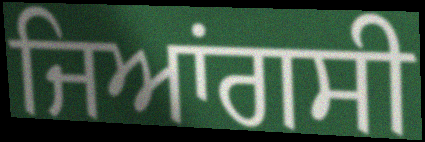
ਜਿਆਂਗਸੀ